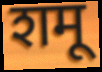
शमू